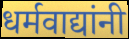
धर्मवाद्यांनी